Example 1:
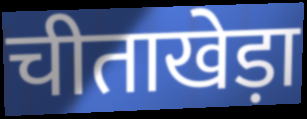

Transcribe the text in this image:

चीताखेड़ा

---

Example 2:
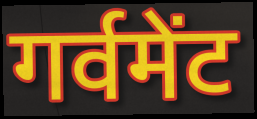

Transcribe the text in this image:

गर्वमेंट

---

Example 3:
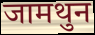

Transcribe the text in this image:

जामथुन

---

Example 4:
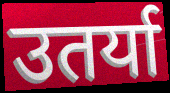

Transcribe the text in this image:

उतर्या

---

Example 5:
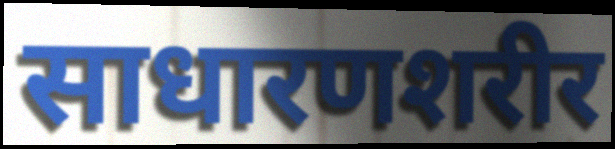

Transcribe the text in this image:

साधारणशरीर